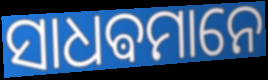
ସାଧଵମାନେ